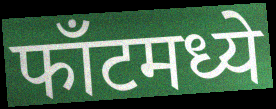
फाँटमध्ये